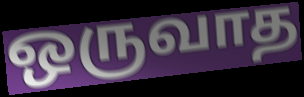
ஒருவாத